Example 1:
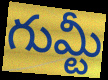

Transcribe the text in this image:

గుమ్టీ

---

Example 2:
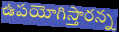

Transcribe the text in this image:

ఉపయోగిస్తారన్న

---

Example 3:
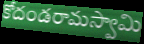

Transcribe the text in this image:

కోదండరామస్వామి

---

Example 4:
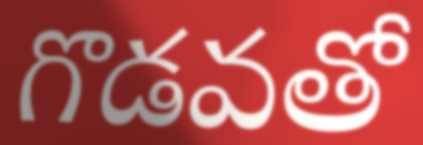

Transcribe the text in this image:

గొడవతో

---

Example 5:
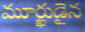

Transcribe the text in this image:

మూర్ఖుడైన